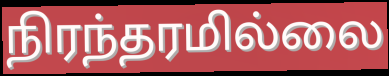
நிரந்தரமில்லை